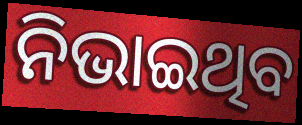
ନିଭାଇଥିବ